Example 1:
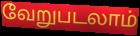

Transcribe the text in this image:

வேறுபடலாம்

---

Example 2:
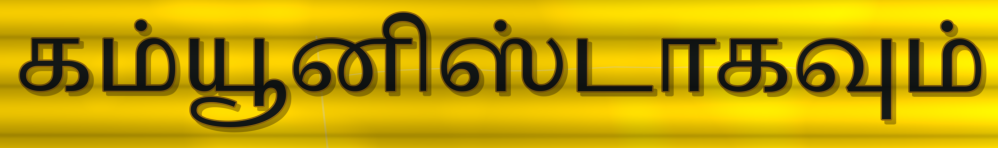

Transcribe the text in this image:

கம்யூனிஸ்டாகவும்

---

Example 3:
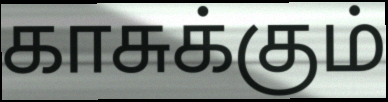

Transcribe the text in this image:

காசுக்கும்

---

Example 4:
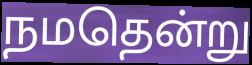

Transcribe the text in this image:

நமதென்று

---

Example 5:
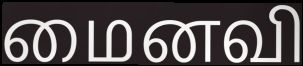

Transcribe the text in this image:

மைனவி